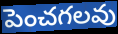
పెంచగలవు